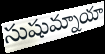
సుషుమ్నాయా